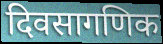
दिवसागणिक